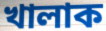
খালাক